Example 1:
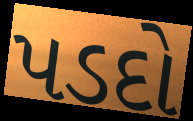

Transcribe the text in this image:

પડદો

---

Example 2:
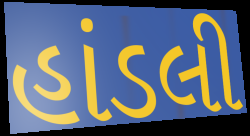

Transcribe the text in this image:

હાંડલી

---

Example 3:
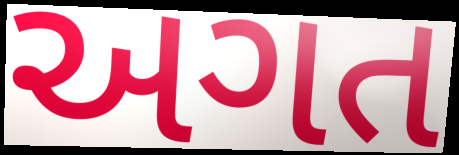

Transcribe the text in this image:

અગત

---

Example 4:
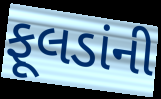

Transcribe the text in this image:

ફૂલડાંની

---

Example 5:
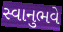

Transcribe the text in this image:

સ્વાનુભવે